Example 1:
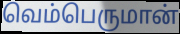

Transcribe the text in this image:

வெம்பெருமான்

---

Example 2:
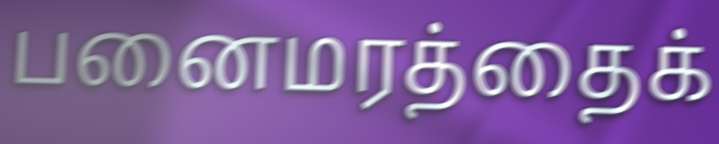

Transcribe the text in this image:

பனைமரத்தைக்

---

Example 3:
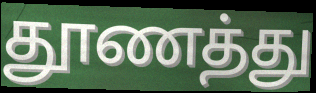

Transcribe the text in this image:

தூணத்து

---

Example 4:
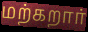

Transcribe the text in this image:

மற்கறார்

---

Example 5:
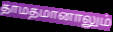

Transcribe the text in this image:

தாமதமானாலும்